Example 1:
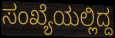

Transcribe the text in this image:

ಸಂಖ್ಯೆಯಲ್ಲಿದ್ದ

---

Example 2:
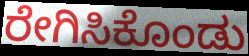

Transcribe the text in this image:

ರೇಗಿಸಿಕೊಂಡು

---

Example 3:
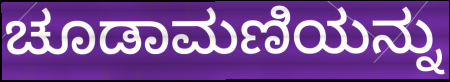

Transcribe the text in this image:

ಚೂಡಾಮಣಿಯನ್ನು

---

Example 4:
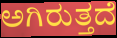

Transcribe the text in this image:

ಅಗಿರುತ್ತದೆ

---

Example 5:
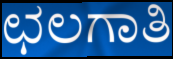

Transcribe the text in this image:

ಛಲಗಾತಿ